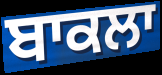
ਬਾਕਲਾ